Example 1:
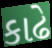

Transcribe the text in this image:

કાઢે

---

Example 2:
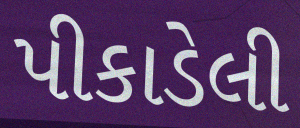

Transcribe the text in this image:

પીકાડેલી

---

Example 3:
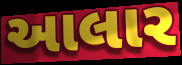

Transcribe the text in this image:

આલાર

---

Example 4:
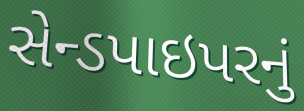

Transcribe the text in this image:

સેન્ડપાઇપરનું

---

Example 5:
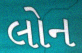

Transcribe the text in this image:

લોન